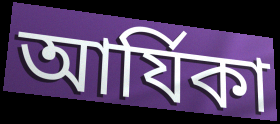
আর্যিকা